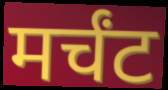
मर्चंट